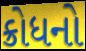
ક્રોધનો